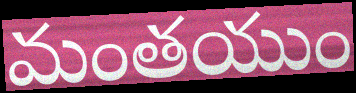
మంతయుం